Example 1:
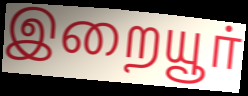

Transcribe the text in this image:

இறையூர்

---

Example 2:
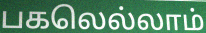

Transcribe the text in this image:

பகலெல்லாம்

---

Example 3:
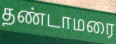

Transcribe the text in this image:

தண்டாமரை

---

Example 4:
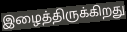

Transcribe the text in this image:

இழைத்திருக்கிறது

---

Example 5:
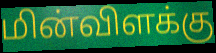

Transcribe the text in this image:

மின்விளக்கு